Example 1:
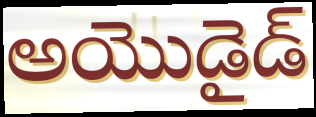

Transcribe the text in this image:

అయొడైడ్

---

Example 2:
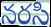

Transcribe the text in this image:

నరసి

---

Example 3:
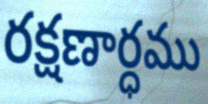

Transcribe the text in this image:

రక్షణార్ధము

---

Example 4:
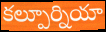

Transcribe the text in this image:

కల్పూర్నియా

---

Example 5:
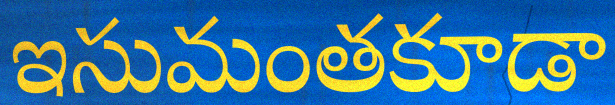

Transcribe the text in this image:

ఇసుమంతకూడా